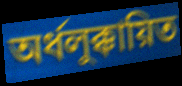
অর্ধলুক্কায়িত